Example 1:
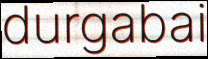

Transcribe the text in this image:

durgabai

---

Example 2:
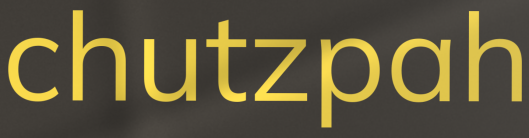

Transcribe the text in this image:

chutzpah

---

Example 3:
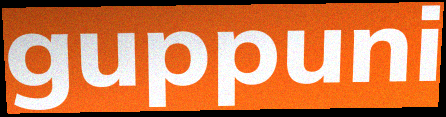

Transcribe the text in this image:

guppuni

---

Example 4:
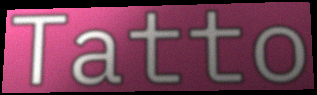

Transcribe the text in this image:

Tatto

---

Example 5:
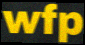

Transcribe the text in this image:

wfp